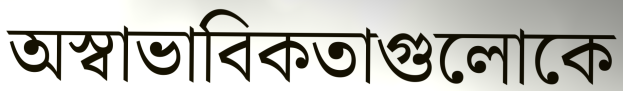
অস্বাভাবিকতাগুলোকে